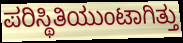
ಪರಿಸ್ಥಿತಿಯುಂಟಾಗಿತ್ತು